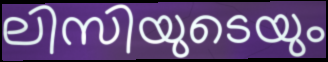
ലിസിയുടെയും